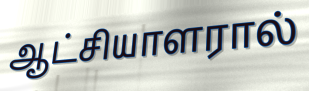
ஆட்சியாளரால்